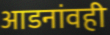
आडनांवही